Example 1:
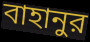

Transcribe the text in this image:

বাহানুর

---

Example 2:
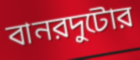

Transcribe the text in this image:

বানরদুটোর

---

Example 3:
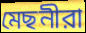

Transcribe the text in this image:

মেছনীরা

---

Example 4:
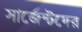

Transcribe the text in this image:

সার্জেন্টদের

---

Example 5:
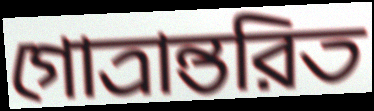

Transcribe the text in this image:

গোত্রান্তরিত